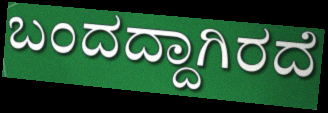
ಬಂದದ್ದಾಗಿರದೆ